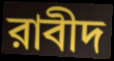
রাবীদ